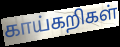
காய்கறிகள்